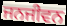
ਜਨਜੀਵਨ